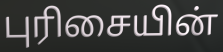
புரிசையின்